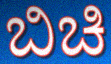
ಬಿಚಿ